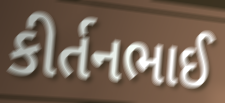
કીર્તનભાઈ